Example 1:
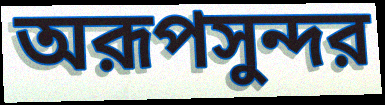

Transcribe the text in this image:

অরূপসুন্দর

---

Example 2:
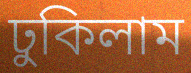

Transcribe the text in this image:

ঢুকিলাম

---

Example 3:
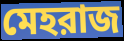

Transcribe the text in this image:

মেহরাজ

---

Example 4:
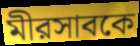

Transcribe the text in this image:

মীরসাবকে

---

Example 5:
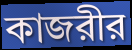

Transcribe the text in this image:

কাজরীর